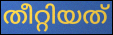
തീറ്റിയത്